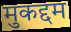
मुकद्दम